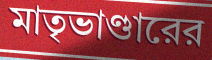
মাতৃভাণ্ডারের